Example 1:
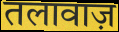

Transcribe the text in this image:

तलावाज़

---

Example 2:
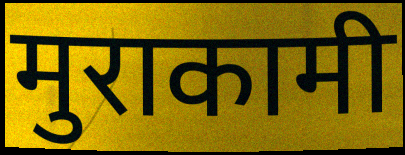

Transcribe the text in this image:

मुराकामी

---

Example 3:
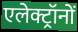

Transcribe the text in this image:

एलेक्ट्रॉनों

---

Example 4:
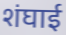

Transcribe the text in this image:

शंघाई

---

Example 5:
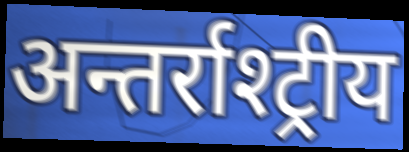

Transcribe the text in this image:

अन्तर्राश्ट्रीय